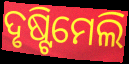
ଦୃଷ୍ଟିମେଲି